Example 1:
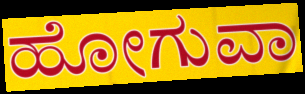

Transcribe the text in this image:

ಹೋಗುವಾ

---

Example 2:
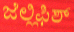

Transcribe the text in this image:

ಜೆಲ್ಲಿಫಿಶ್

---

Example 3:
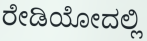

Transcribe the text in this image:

ರೇಡಿಯೋದಲ್ಲಿ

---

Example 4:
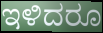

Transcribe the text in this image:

ಇಳಿದರೂ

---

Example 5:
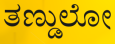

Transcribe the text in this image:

ತಣ್ಡುಲೋ